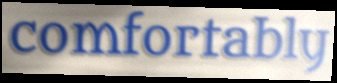
comfortably